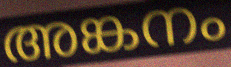
അങ്കനം